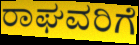
ರಾಘವರಿಗೆ